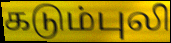
கடும்புலி